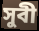
সুবী